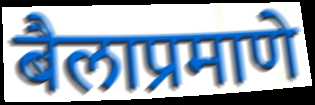
बैलाप्रमाणे